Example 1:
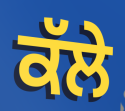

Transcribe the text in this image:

ਕੱਲੇ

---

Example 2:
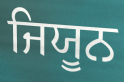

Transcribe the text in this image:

ਜਿਯੂਨ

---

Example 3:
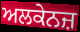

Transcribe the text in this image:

ਅਲਕੇਨਜ਼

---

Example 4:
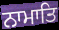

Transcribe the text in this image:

ਨਾਮਾਤਿ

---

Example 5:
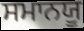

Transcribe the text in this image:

ਸਮਾਨਯੂ